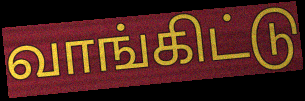
வாங்கிட்டு